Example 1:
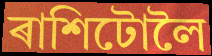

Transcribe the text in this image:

ৰাশিটোলৈ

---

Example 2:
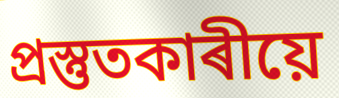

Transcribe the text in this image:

প্ৰস্তুতকাৰীয়ে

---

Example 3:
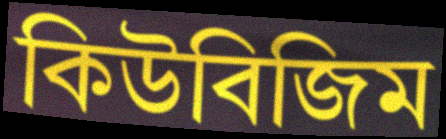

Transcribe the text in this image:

কিউবিজিম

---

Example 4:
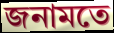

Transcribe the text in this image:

জনামতে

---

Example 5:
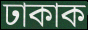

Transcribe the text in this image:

ঢাকাক